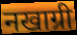
नखाग्री